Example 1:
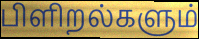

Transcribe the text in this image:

பிளிறல்களும்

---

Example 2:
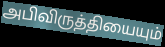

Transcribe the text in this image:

அபிவிருத்தியையும்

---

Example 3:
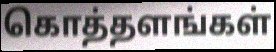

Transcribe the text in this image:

கொத்தளங்கள்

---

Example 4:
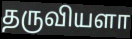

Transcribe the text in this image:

தருவியளா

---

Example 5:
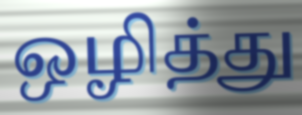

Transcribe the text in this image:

ஒழித்து